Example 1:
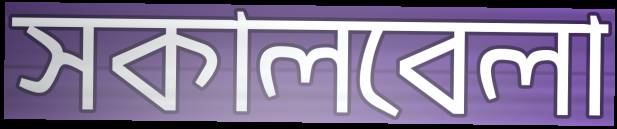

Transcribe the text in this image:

সকালবেলা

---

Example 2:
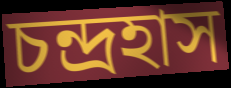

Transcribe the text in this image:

চন্দ্রহাস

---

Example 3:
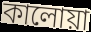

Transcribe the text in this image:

কালোয়া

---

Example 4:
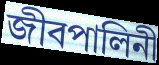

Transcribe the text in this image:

জীবপালিনী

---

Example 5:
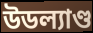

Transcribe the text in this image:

উডল্যাণ্ড